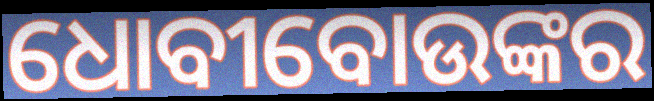
ଧୋବୀବୋଉଙ୍କର